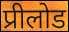
प्रीलोड